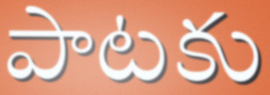
పాటకు